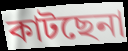
কাটছেনা